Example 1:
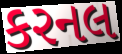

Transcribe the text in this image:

કરનલ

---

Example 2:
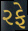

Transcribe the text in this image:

રફે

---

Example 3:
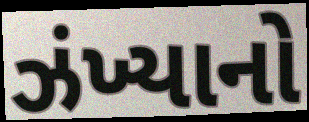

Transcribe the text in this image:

ઝંખ્યાનો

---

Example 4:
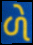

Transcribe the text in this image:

ળે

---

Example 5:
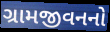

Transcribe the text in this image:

ગ્રામજીવનનો